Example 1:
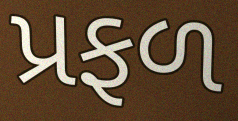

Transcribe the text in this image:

પ્રફળ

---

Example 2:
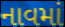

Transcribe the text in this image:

નાવમાં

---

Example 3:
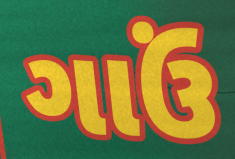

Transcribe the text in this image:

ગાઉં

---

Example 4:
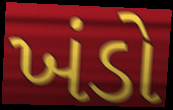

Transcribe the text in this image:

ખંડો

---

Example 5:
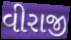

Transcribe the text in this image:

વીરાજી